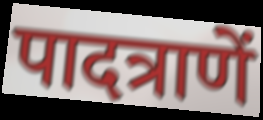
पादत्राणें